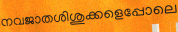
നവജാതശിശുക്കളെപ്പോലെ